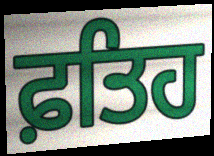
ਫ਼ਤਿਹ